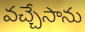
వచ్చేసాను